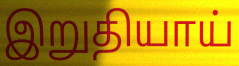
இறுதியாய்